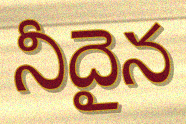
నీదైన